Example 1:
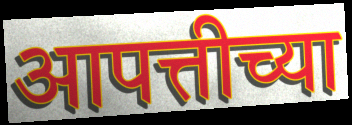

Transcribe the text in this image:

आपत्तीच्या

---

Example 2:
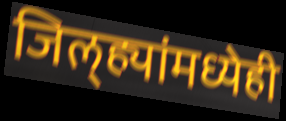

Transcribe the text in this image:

जिल्ह्यांमध्येही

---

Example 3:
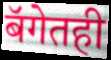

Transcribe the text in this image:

बॅगेतही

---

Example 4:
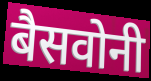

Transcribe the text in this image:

बैसवोनी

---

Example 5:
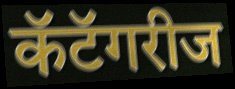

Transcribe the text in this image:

कॅटॅगरीज